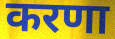
करणा